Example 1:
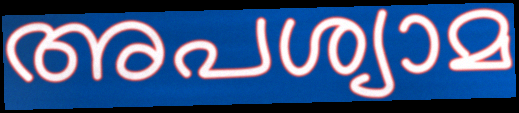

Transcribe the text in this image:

അപശ്യാമ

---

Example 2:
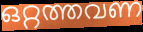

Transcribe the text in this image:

ഒറ്റത്തവണ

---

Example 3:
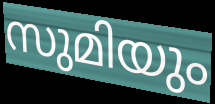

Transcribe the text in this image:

സുമിയും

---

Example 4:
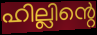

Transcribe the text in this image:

ഹില്ലിന്റെ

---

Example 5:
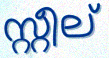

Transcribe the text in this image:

സ്റ്റീല്